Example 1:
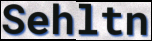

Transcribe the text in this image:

Sehltn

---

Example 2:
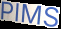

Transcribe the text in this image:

PIMS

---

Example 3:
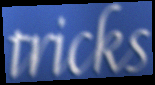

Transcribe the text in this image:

tricks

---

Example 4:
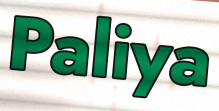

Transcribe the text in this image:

Paliya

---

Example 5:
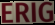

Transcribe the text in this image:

ERIG